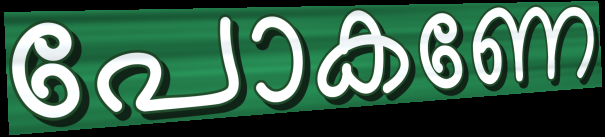
പോകണേ